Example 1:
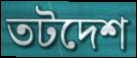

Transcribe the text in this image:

তটদেশ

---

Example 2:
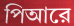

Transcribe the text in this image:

পিআরে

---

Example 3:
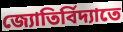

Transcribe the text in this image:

জ্যোতির্বিদ্যাতে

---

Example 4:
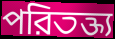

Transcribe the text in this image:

পরিতক্ত্য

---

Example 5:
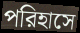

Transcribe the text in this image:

পরিহাসে